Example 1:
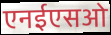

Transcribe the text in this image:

एनईएसओ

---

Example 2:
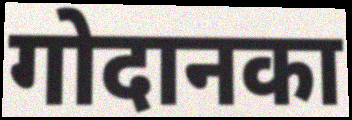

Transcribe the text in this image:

गोदानका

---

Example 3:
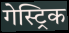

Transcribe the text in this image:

गेस्ट्रिक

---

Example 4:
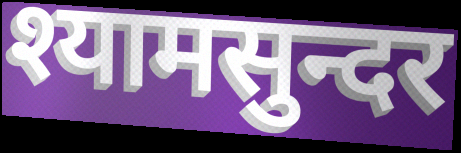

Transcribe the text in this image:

श्यामसुन्दर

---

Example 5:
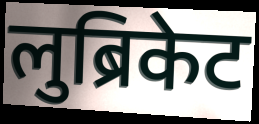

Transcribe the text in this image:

लुब्रिकेट